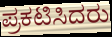
ಪ್ರಕಟಿಸಿದರು